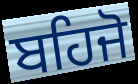
ਬਹਿਜੋ